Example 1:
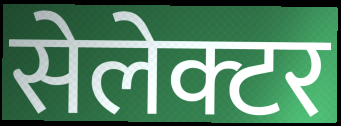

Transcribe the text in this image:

सेलेक्‍टर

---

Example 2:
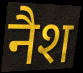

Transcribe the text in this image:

नैश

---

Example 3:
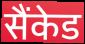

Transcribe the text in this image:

सैंकेड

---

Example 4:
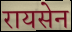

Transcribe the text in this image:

रायसेन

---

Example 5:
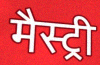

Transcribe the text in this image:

मैस्ट्री